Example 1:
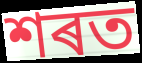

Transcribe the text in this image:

শৰত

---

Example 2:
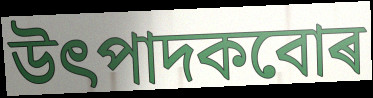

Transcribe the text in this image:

উৎপাদকবোৰ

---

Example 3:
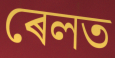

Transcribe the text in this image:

ৰেলত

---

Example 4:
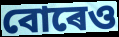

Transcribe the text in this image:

বোৰেও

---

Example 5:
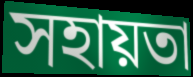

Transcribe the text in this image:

সহায়তা